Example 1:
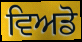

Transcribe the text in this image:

ਵਿਅਡੋ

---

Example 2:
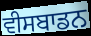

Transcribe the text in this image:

ਵੀਸਬਾਡਨ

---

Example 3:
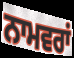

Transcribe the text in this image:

ਨਾਮਵਰਾਂ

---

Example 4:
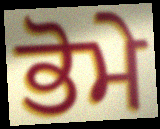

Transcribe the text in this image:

ਭੋਮੇ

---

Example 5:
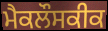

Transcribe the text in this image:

ਮੈਕਲੌਸਕੀਕ